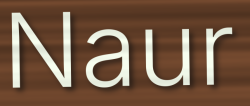
Naur